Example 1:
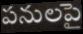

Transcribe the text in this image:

పనులపై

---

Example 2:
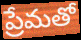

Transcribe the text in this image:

ప్రేమతో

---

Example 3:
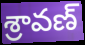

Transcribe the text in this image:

శ్రావణ్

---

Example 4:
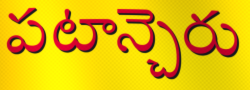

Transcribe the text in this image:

పటాన్చెరు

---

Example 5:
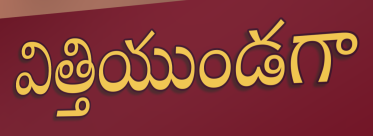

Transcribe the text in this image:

విత్తియుండగా